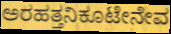
ಅರಹತ್ತನಿಕೂಟೇನೇವ